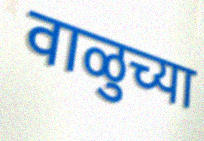
वाळुच्या